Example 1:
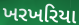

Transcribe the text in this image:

ખરખરિયા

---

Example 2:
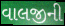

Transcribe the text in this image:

વાલજીની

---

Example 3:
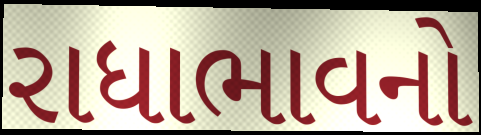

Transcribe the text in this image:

રાધાભાવનો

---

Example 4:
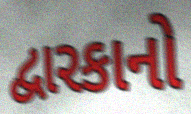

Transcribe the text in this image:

દ્વારકાનો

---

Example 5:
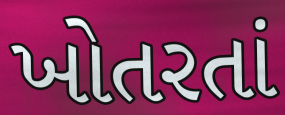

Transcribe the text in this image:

ખોતરતાં